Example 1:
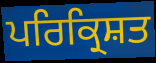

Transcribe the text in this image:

ਪਰਿਕ੍ਰਿਸ਼ਤ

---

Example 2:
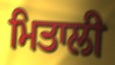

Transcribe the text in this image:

ਮਿਤਾਲੀ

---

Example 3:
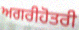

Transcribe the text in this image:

ਅਗਰੀਹੋਤਰੀ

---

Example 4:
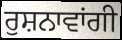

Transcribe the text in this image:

ਰੁਸ਼ਨਾਵਾਂਗੀ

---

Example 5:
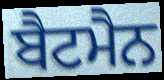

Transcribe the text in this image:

ਬੈਟਮੈਨ